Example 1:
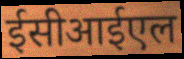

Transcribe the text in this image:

ईसीआईएल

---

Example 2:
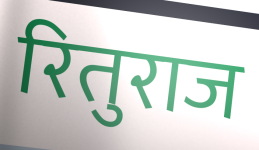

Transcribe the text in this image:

रितुराज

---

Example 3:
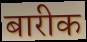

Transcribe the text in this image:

बारीक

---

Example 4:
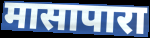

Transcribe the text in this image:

मासापारा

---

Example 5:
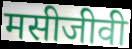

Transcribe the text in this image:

मसीजीवी